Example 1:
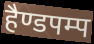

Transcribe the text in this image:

हैण्डपम्प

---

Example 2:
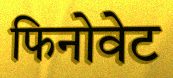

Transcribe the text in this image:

फिनोवेट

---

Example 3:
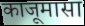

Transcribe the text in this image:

काजूमासा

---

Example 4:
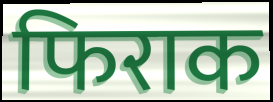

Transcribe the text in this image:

फिराक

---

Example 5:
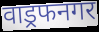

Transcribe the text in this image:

वाड्रफनगर